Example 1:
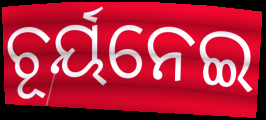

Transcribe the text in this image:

ଚୂର୍ୟନେଇ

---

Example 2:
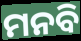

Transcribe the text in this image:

ମନବି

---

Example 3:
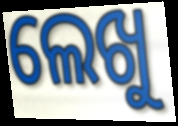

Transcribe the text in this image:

ଲେଖୁ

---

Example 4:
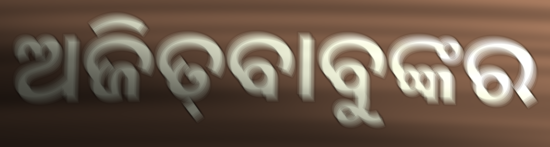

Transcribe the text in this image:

ଅଜିତ୍‍ବାବୁଙ୍କର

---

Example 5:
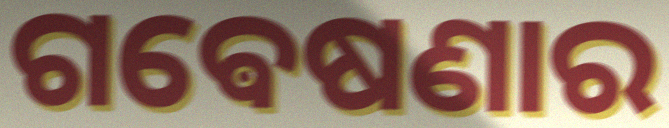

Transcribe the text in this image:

ଗଵେଷଣାର